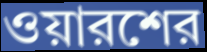
ওয়ারশের